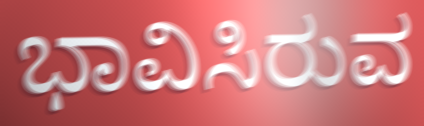
ಭಾವಿಸಿರುವ